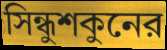
সিন্ধুশকুনের